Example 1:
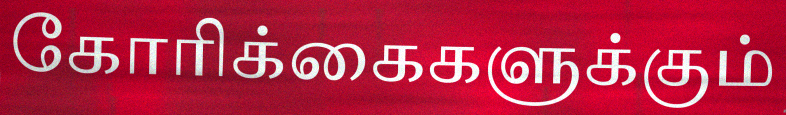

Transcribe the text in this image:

கோரிக்கைகளுக்கும்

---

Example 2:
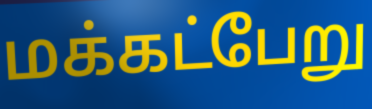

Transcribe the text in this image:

மக்கட்பேறு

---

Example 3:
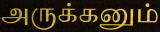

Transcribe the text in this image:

அருக்கனும்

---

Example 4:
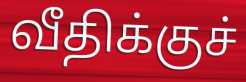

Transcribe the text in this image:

வீதிக்குச்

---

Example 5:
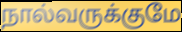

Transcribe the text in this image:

நால்வருக்குமே